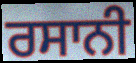
ਰਸਾਨੀ